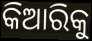
କିଆରିକୁ